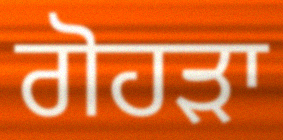
ਗੋਹੜਾ